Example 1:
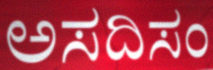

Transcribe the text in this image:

ಅಸದಿಸಂ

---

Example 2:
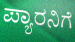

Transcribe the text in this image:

ಪ್ಯಾರನಿಗೆ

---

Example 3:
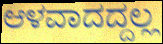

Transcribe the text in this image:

ಆಳವಾದದ್ದಲ್ಲ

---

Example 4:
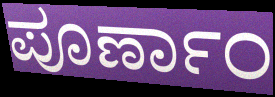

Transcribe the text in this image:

ಪೂರ್ಣಾಂ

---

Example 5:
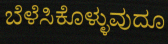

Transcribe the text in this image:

ಬೆಳೆಸಿಕೊಳ್ಳುವುದೂ